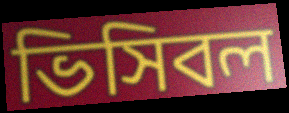
ভিসিবল